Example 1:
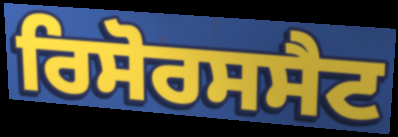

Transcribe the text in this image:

ਰਿਸੋਰਸਸੈਟ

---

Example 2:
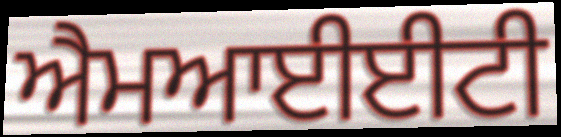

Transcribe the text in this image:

ਐਮਆਈਈਟੀ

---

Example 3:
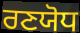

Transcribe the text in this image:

ਰਣਯੋਧ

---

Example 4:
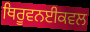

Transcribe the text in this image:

ਥਿਰੂਵਨਈਕਵਲ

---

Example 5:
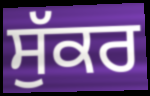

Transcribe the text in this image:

ਸੁੱਕਰ